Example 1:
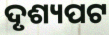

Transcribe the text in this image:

ଦୃଶ୍ୟପଟ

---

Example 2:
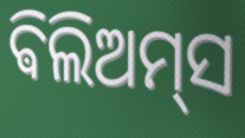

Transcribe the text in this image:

ଵିଲିଅମ୍‌ସ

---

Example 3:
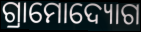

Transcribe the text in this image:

ଗ୍ରାମୋଦ୍ୟୋଗ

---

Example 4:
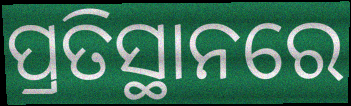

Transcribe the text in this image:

ପ୍ରତିସ୍ଥାନରେ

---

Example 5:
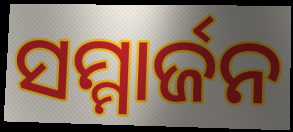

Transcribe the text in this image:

ସମ୍ମାର୍ଜନ